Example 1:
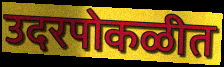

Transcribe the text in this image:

उदरपोकळीत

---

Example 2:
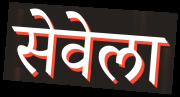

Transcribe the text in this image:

सेवेला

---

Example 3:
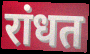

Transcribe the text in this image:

रांधत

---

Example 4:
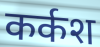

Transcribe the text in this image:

कर्कश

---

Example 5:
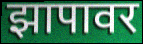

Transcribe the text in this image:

झापावर